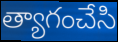
త్యాగంచేసి